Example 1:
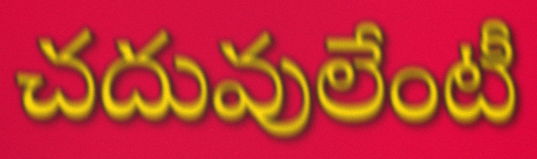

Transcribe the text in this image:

చదువులేంటీ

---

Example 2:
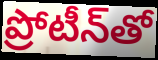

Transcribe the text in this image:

ప్రోటీన్‌తో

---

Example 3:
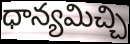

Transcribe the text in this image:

ధాన్యమిచ్చి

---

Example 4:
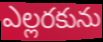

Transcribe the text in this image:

ఎల్లరకును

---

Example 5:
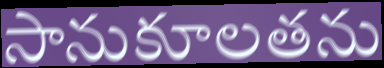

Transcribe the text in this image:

సానుకూలతను